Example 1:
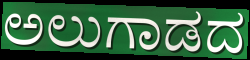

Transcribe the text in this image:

ಅಲುಗಾಡದ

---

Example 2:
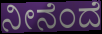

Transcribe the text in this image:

ನೀನೆಂದೆ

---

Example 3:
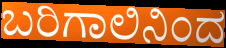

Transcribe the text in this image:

ಬರಿಗಾಲಿನಿಂದ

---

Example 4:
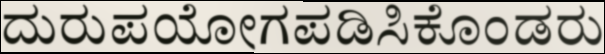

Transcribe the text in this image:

ದುರುಪಯೋಗಪಡಿಸಿಕೊಂಡರು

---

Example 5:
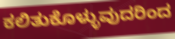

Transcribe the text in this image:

ಕಲಿತುಕೊಳ್ಳುವುದರಿಂದ